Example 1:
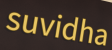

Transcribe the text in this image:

suvidha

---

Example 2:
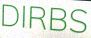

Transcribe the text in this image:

DIRBS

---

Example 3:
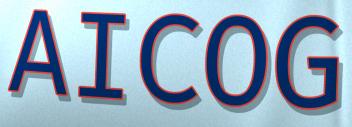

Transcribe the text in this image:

AICOG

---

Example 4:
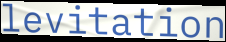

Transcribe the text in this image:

levitation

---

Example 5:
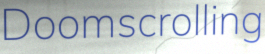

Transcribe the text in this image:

Doomscrolling